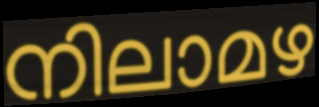
നിലാമഴ